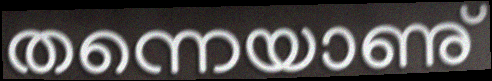
തന്നെയാണു്